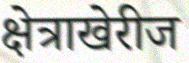
क्षेत्राखेरीज